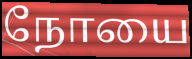
நோயை